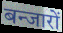
बन्जारों